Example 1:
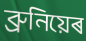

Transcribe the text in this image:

ব্ৰুনিয়েৰ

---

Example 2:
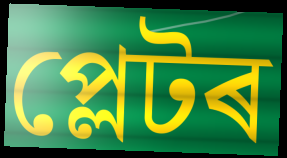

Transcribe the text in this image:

প্লেটৰ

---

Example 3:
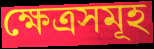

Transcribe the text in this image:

ক্ষেত্ৰসমূহ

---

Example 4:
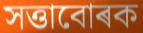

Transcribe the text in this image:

সত্তাবোৰক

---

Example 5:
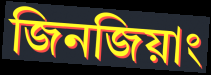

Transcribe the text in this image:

জিনজিয়াং